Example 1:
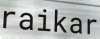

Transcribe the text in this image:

raikar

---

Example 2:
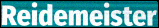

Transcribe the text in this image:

Reidemeister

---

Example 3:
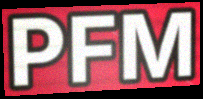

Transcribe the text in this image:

PFM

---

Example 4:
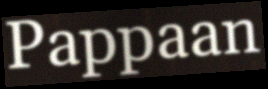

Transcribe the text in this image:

Pappaan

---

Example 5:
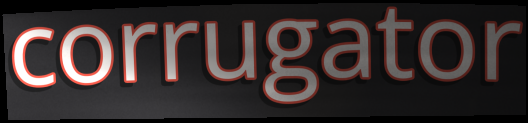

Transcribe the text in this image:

corrugator